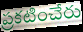
ప్రకటించేరు